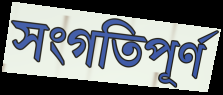
সংগতিপূর্ণ